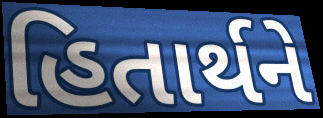
હિતાર્થને